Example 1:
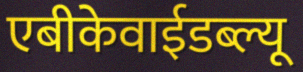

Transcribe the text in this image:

एबीकेवाईडब्ल्यू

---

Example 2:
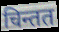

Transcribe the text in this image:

चिन्तत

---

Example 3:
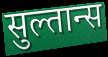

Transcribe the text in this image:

सुल्तान्स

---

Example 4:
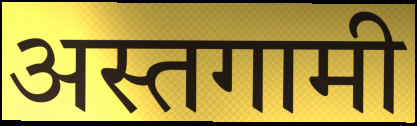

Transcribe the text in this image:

अस्तगामी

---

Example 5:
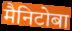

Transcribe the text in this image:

मैनिटोबा